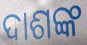
ଦାଶଙ୍କ